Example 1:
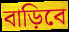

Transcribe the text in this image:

বাড়িবে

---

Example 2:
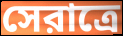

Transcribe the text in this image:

সেরাত্রে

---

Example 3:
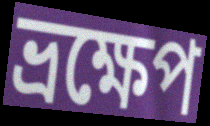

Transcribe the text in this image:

ভ্রক্ষেপ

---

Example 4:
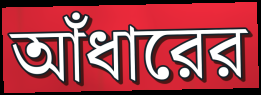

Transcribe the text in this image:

আঁধারের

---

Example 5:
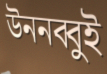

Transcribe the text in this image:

উননব্বুই